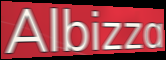
Albizza